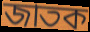
জাতক